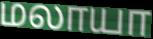
மலாயா